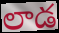
లాడ